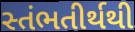
સ્તંભતીર્થથી